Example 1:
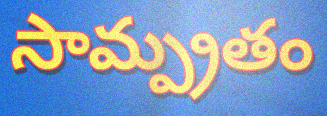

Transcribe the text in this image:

సామ్ప్రతం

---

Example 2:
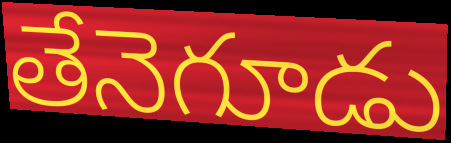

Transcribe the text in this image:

తేనెగూడు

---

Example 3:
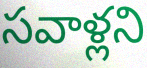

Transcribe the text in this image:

సవాళ్లని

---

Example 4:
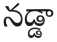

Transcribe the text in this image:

నడ్డా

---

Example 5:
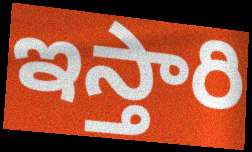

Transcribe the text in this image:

ఇస్తారి